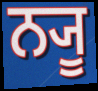
ਨ੍ਯੂ